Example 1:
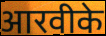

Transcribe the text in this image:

आरवीके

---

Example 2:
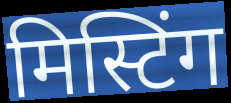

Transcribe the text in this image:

मिस्टिंग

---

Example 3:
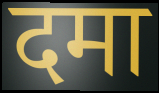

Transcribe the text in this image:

दमा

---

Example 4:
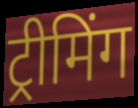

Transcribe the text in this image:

ट्रीमिंग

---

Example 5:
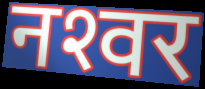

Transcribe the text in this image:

नश्वर